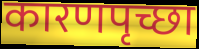
कारणपृच्छा